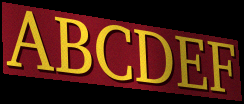
ABCDEF